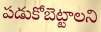
పడుకోబెట్టాలని